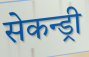
सेकन्ड्री